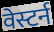
वेस्‍टर्न